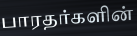
பாரதர்களின்